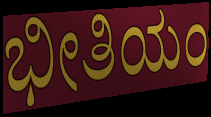
ಭೀತಿಯಂ